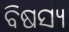
ବିଷସ୍ୟ